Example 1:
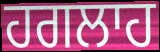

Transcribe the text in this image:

ਹਗਲਾਹ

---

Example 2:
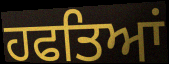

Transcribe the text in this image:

ਹਫਤਿਆਂ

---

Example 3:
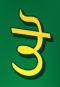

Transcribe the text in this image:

ਤੋ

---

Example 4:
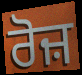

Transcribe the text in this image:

ਰੋਜ਼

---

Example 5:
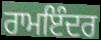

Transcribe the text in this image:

ਰਾਮਇੰਦਰ